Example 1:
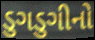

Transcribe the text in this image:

ડુગડુગીનો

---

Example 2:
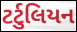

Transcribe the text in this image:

ટર્ટુલિયન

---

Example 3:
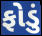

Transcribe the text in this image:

ફોડું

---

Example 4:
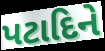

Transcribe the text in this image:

પટાદિને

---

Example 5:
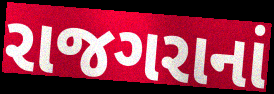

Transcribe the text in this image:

રાજગરાનાં